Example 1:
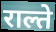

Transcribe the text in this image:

राल्ते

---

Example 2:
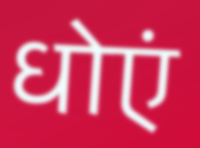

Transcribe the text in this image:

धोएं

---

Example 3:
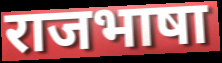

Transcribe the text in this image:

राजभाषा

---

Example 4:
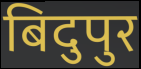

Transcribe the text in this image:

बिदुपुर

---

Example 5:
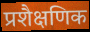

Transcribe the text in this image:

प्रशैक्षणिक